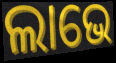
ଲାଭେ